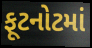
ફૂટનોટમાં